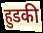
हुडकी